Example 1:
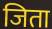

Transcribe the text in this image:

जिता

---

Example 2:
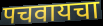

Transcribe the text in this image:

पचवायचा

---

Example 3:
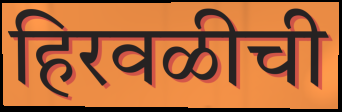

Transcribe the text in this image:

हिरवळीची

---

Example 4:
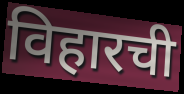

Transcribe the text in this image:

विहारची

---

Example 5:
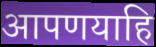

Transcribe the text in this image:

आपणयाहि